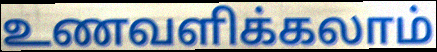
உணவளிக்கலாம்